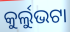
କୁର୍ଲୁଭଟା